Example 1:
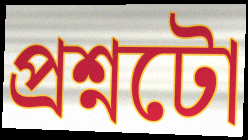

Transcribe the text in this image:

প্ৰশ্নটো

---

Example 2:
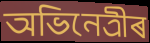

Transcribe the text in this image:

অভিনেত্ৰীৰ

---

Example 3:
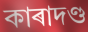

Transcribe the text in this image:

কাৰাদণ্ড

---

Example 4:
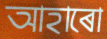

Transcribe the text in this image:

আহাৰো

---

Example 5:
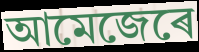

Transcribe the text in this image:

আমেজেৰে